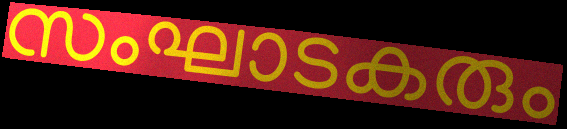
സംഘാടകരും